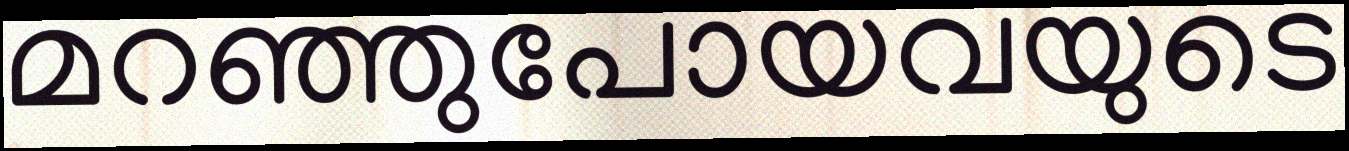
മറഞ്ഞുപോയവയുടെ